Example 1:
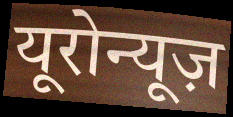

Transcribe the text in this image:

यूरोन्यूज़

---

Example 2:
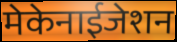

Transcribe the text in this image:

मेकेनाईजेशन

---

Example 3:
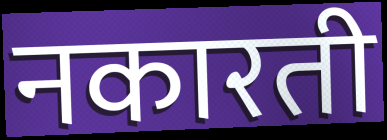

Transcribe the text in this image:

नकारती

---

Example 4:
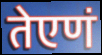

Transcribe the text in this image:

तेएणं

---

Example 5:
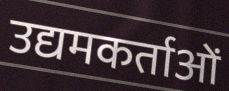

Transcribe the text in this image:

उद्यमकर्ताओं